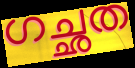
ഗച്ഛത